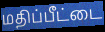
மதிப்பீட்டை